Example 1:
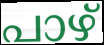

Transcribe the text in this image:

പാഴ്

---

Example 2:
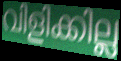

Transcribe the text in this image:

വിളിക്കില്ല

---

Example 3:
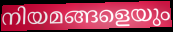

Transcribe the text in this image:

നിയമങ്ങളെയും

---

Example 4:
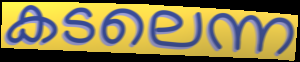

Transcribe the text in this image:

കടലെന്ന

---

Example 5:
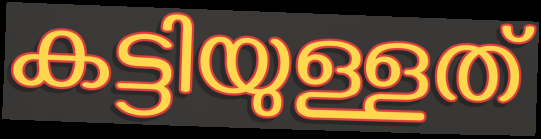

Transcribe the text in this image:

കട്ടിയുള്ളത്